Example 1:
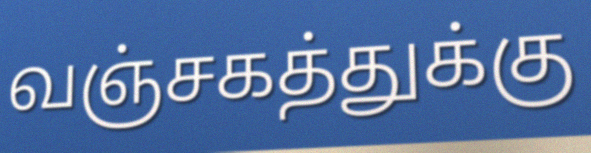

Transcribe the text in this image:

வஞ்சகத்துக்கு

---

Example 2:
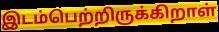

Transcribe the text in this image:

இடம்பெற்றிருக்கிறாள்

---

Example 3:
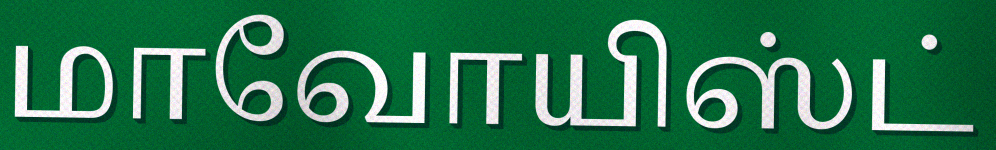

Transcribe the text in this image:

மாவோயிஸ்ட்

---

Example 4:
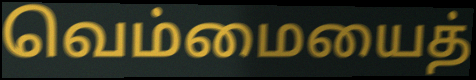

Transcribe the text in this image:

வெம்மையைத்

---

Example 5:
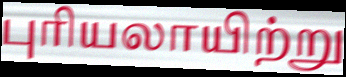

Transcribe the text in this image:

புரியலாயிற்று